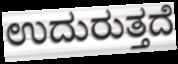
ಉದುರುತ್ತದೆ